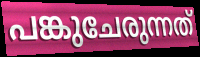
പങ്കുചേരുന്നത്